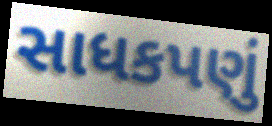
સાધકપણું